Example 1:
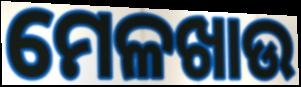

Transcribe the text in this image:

ମେଳଖାଉ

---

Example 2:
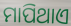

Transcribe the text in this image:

ମାପିଥାଏ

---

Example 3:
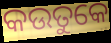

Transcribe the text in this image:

କଉତୁକେ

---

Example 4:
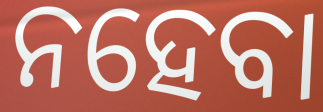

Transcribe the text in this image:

ନହେବା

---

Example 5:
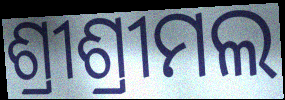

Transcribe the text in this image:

ଶ୍ରୀଶ୍ରୀମଲ